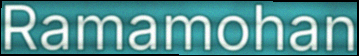
Ramamohan